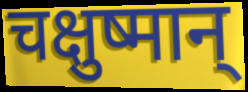
चक्षुष्मान्